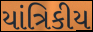
યાંત્રિકીય